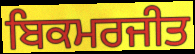
ਬਿਕਮਰਜੀਤ